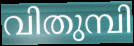
വിതുമ്പി